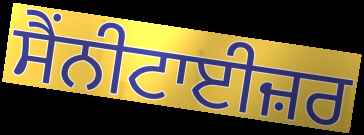
ਸੈਂਨੀਟਾਈਜ਼ਰ